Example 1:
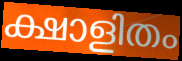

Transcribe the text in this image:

ക്ഷാളിതം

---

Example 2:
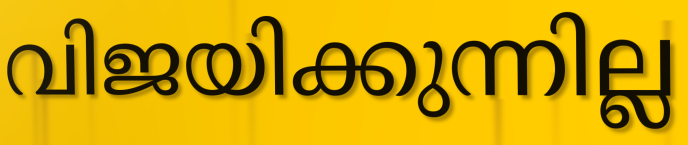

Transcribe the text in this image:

വിജയിക്കുന്നില്ല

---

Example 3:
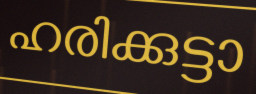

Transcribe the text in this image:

ഹരിക്കുട്ടാ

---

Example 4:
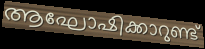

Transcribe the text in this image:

ആഘോഷിക്കാറുണ്ട്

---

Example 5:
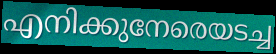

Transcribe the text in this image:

എനിക്കുനേരെയടച്ച